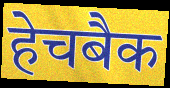
हेचबैक